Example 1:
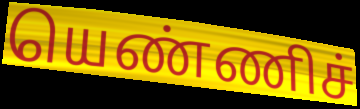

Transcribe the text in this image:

யெண்ணிச்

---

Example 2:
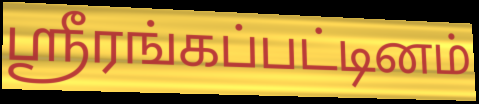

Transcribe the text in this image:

ஸ்ரீரங்கப்பட்டினம்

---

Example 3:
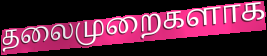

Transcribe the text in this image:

தலைமுறைகளாக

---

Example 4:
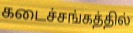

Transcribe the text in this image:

கடைச்சங்கத்தில்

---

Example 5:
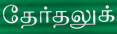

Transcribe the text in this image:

தேர்தலுக்